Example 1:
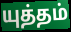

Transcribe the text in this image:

யுத்தம்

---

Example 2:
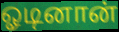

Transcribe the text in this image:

ஓடினான்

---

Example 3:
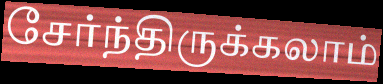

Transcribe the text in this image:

சேர்ந்திருக்கலாம்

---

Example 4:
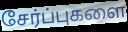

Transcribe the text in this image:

சேர்ப்புகளை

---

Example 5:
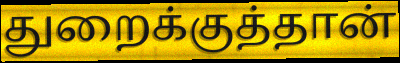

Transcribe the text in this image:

துறைக்குத்தான்